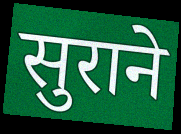
सुराने